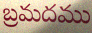
బ్రమదము